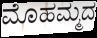
ಮೊಹಮ್ಮದ